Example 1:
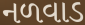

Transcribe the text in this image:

નળવાડ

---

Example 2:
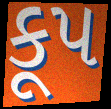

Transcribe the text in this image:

કૂપ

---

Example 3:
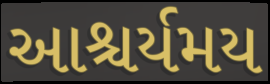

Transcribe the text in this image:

આશ્ચર્યમય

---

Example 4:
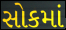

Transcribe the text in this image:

સોકમાં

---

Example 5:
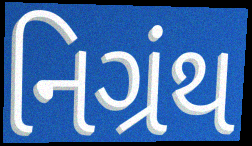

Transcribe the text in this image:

નિગ્રંથ